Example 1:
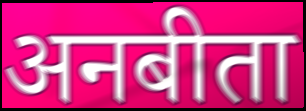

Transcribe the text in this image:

अनबीता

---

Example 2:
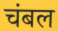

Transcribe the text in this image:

चंबल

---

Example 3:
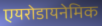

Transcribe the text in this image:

एयरोडायनेमिक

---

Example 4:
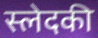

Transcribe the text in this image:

स्लेदकी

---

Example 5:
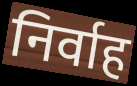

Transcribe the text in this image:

निर्वाह